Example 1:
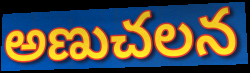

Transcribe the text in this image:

అణుచలన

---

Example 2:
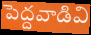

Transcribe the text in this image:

పెద్దవాడివి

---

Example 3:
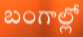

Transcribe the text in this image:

బంగాల్లో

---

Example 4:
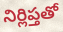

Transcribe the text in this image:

నిర్లిప్తతో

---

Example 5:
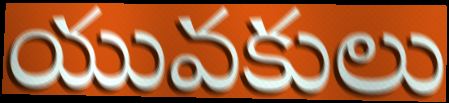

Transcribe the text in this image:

యువకులు